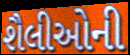
શૈલીઓની